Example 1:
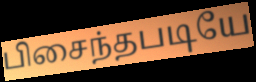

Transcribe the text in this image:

பிசைந்தபடியே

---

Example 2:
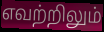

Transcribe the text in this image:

எவற்றிலும்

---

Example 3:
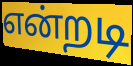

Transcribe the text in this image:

என்றடி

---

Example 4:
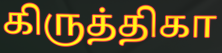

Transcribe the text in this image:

கிருத்திகா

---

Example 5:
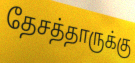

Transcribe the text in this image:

தேசத்தாருக்கு